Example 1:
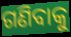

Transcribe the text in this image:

ଗଣିବାକୁ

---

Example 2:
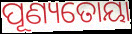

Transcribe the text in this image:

ପୂଣ୍ୟତୋୟା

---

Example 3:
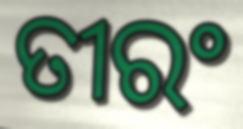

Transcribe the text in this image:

ତୀରଂ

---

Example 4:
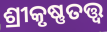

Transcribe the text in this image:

ଶ୍ରୀକୃଷ୍ଣତତ୍ତ୍ଵ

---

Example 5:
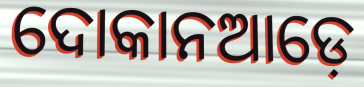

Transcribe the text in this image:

ଦୋକାନଆଡ଼େ